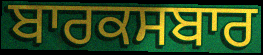
ਬਾਰਕਸਬਾਰ